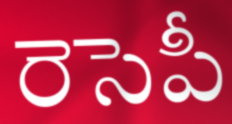
రెసెపీ